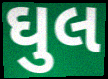
ઘુલ